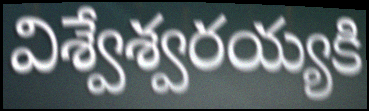
విశ్వేశ్వరయ్యకి